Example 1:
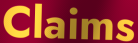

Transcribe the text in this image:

Claims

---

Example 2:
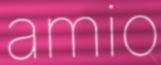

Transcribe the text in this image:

amio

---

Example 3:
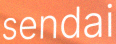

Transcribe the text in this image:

sendai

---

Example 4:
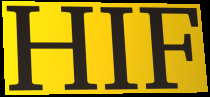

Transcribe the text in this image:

HIF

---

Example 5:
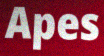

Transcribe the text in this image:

Apes